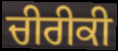
ਚੀਰੀਕੀ